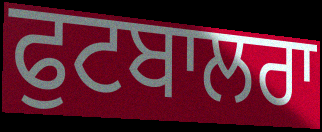
ਫੁਟਬਾਲਰਾ